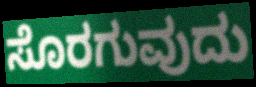
ಸೊರಗುವುದು